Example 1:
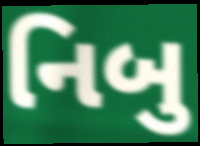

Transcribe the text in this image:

નિબુ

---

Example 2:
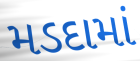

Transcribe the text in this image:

મડદામાં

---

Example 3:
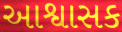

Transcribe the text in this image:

આશ્વાસક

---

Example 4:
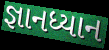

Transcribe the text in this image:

જ્ઞાનધ્યાન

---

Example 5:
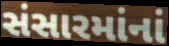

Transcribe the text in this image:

સંસારમાંનાં